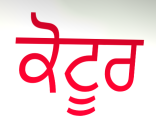
ਕੋਟੂਰ